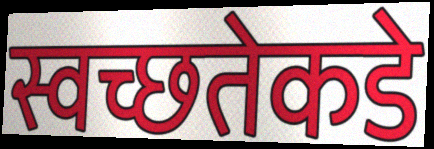
स्वच्छतेकडे